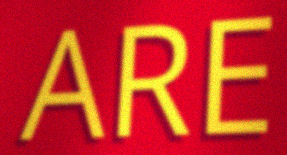
ARE